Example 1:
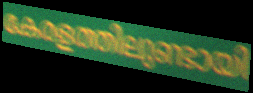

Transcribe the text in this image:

കേരളത്തിലുണ്ടായി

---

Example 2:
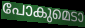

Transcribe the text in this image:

പോകുമെടാ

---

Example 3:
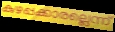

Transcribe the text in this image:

കുഴപ്പക്കാരല്ലെന്ന്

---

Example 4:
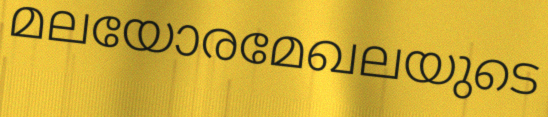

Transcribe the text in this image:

മലയോരമേഖലയുടെ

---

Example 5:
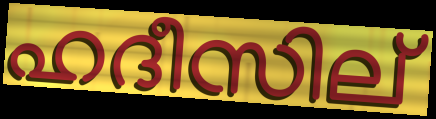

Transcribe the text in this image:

ഹദീസില്